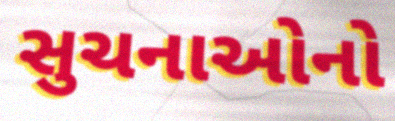
સુચનાઓનો